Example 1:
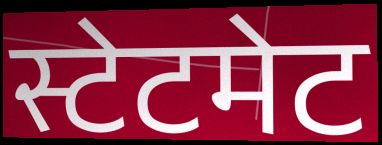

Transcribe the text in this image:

स्टेटमेट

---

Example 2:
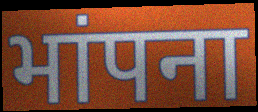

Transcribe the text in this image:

भांपना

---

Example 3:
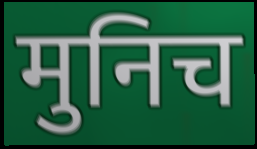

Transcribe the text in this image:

मुनिच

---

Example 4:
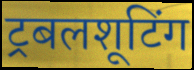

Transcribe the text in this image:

ट्रबलशूटिंग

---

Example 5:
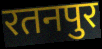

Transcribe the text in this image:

रतनपुर